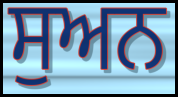
ਸੁਅਨ